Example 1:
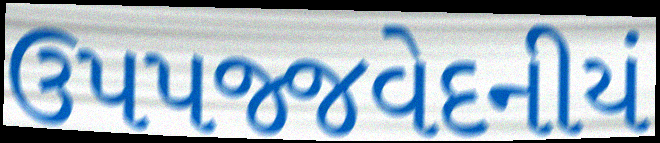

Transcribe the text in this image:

ઉપપજ્જવેદનીયં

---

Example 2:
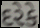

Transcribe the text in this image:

દરેકે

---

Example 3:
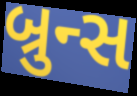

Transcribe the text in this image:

બ્રુન્સ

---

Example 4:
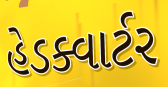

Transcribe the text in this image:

હેડક્વાર્ટર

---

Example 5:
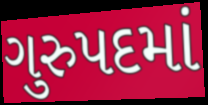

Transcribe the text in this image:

ગુરુપદમાં